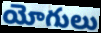
యోగులు